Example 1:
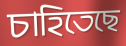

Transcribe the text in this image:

চাহিতেছে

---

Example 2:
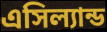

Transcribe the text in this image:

এসিল্যান্ড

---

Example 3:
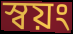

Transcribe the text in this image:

স্বয়ং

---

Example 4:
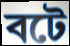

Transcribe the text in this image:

বটে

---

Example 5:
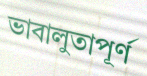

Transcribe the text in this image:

ভাবালুতাপূর্ণ